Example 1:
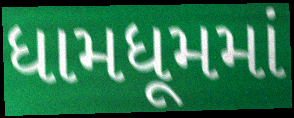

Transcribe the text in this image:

ધામધૂમમાં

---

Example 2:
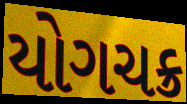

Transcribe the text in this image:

યોગચક્ર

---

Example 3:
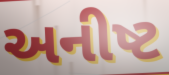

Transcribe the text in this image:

અનીષ્ટ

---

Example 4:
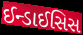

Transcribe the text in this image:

ઈન્ડાઈસિસ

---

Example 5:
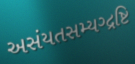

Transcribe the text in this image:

અસંયતસમ્યગ્દ્રષ્ટિ